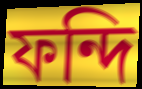
ফন্দি